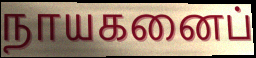
நாயகனைப்